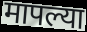
मापल्या